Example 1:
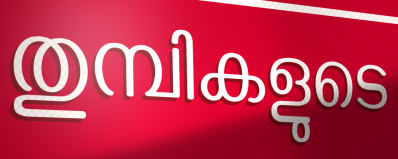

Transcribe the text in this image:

തുമ്പികളുടെ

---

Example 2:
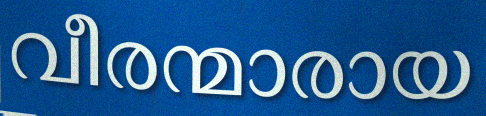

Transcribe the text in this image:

വീരന്മാരായ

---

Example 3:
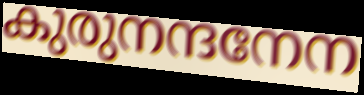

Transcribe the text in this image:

കുരുനന്ദനേന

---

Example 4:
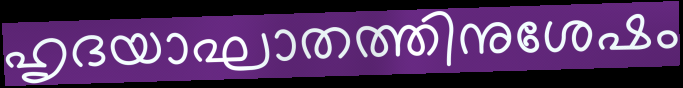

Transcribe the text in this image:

ഹൃദയാഘാതത്തിനുശേഷം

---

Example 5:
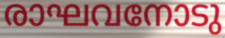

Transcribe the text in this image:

രാഘവനോടു